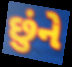
છુંને